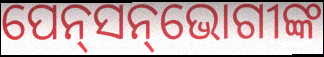
ପେନ୍‌ସନ୍‌ଭୋଗୀଙ୍କ